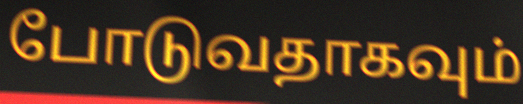
போடுவதாகவும்